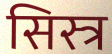
सिस्त्र